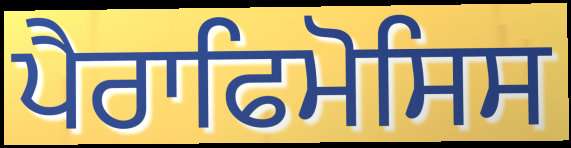
ਪੈਰਾਫਿਮੋਸਿਸ